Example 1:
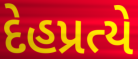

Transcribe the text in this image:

દેહપ્રત્યે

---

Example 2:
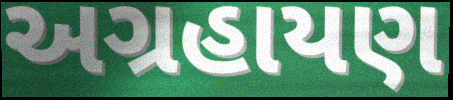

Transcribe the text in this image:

અગ્રહાયણ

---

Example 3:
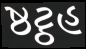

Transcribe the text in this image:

ષ્ઠટ્ઠહ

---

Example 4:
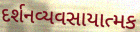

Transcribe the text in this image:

દર્શનવ્યવસાયાત્મક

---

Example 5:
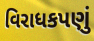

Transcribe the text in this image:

વિરાધકપણું